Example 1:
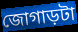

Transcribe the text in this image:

জোগাড়টা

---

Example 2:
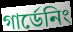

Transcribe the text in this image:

গার্ডেনিং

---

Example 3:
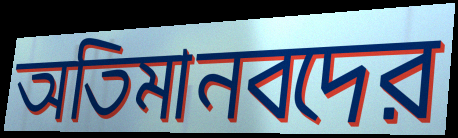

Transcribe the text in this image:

অতিমানবদের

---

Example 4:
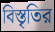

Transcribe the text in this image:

বিস্তৃতির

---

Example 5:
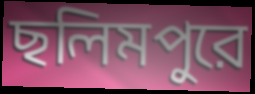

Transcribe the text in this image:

ছলিমপুরে